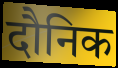
दौनिक